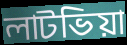
লাটভিয়া